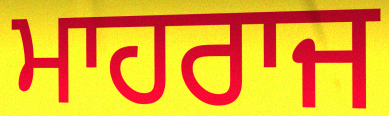
ਮਾਹਰਾਜ